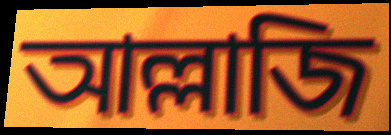
আল্লাজি